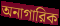
অনাগারিক